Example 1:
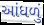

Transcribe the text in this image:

આંધળું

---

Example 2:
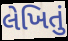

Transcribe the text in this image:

લેખિતું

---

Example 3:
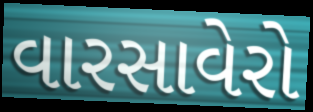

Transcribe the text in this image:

વારસાવેરો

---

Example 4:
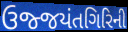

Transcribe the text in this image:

ઉજ્જયંતગિરિની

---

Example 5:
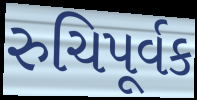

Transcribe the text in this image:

રુચિપૂર્વક